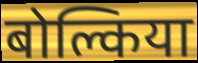
बोल्किया